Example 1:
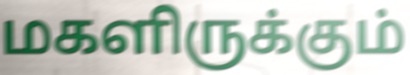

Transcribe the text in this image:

மகளிருக்கும்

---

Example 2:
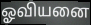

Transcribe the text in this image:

ஓவியனை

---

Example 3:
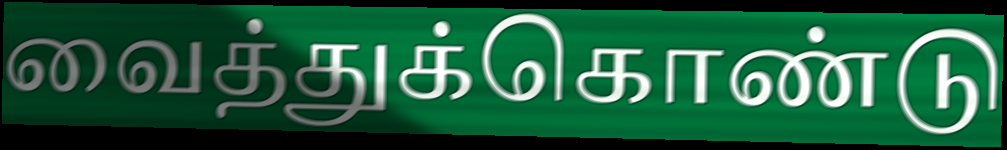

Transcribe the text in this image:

வைத்துக்கொண்டு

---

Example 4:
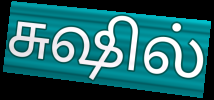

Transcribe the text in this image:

சுஷில்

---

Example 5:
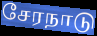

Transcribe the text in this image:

சேரநாடு